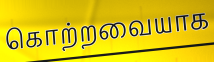
கொற்றவையாக